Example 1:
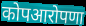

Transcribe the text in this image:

कोपआरोपणा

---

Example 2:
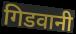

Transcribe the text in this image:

गिडवानी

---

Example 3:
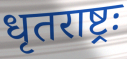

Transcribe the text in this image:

धृतराष्ट्रः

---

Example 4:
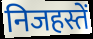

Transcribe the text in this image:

निजहस्तें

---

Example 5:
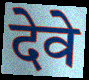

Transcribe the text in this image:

देवे